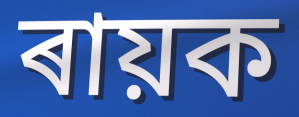
ৰায়ক